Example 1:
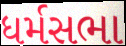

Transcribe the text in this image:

ધર્મસભા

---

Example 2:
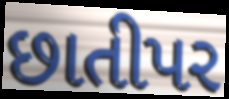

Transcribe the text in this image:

છાતીપર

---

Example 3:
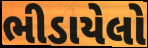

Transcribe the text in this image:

ભીડાયેલો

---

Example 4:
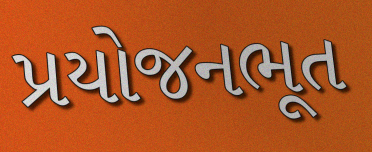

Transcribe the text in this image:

પ્રયોજનભૂત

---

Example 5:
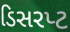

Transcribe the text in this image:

ડિસરપ્ટ